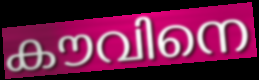
കൗവിനെ